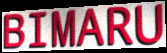
BIMARU